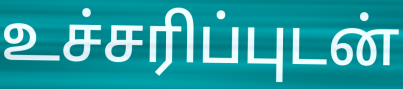
உச்சரிப்புடன்